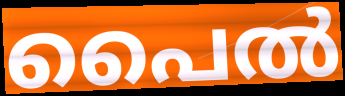
പൈൽ